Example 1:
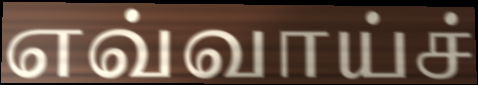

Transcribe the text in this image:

எவ்வாய்ச்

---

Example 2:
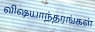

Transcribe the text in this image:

விஷயாந்தரங்கள்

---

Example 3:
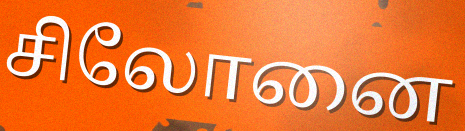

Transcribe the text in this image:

சிலோனை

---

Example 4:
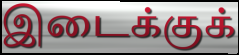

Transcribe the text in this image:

இடைக்குக்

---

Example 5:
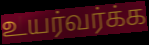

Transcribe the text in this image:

உயர்வர்க்க